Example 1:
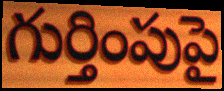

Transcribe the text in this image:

గుర్తింపుపై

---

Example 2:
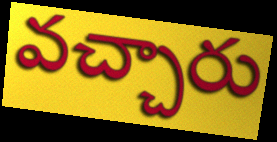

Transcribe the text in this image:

వచ్చారు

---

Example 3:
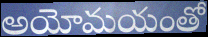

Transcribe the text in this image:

అయోమయంతో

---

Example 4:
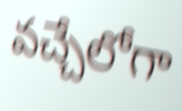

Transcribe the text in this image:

వచ్చేలోగా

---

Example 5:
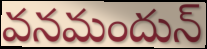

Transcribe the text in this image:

వనమందున్